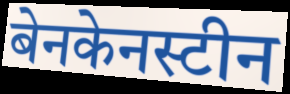
बेनकेनस्टीन